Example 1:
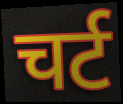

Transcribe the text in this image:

चर्ट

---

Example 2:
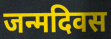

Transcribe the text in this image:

जन्मदिवस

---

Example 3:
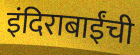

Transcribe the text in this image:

इंदिराबाईंची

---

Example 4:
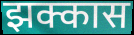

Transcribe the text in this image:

झक्कास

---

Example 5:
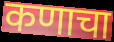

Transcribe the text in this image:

कणाचा